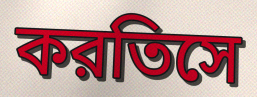
করতিসে